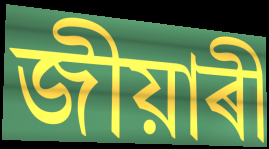
জীয়াৰী